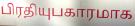
பிரதியுபகாரமாக